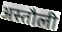
अस्तौली